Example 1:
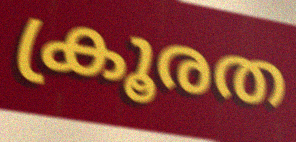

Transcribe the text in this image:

ക്രൂരത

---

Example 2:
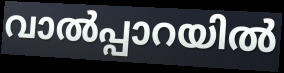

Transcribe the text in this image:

വാൽപ്പാറയിൽ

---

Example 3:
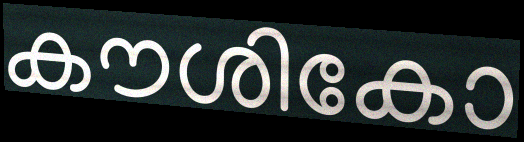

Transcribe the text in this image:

കൗശികോ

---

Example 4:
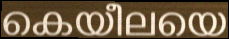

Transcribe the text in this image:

കെയീലയെ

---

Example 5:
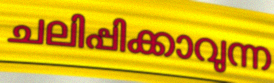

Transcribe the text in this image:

ചലിപ്പിക്കാവുന്ന